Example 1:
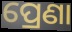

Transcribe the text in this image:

ପ୍ରେଣା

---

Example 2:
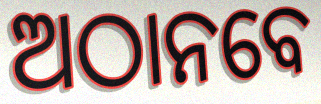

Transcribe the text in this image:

ଅଠାନବେ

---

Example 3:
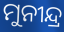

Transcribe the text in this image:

ମୁନୀନ୍ଦ୍ର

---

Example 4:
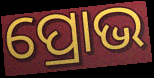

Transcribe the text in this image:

ପ୍ରୋଭ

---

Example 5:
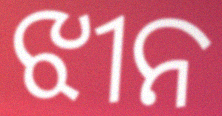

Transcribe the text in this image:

ଝୀନ